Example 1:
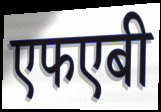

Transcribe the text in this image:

एफएबी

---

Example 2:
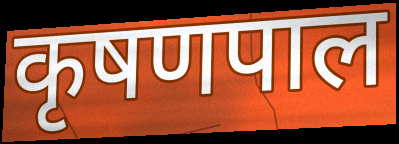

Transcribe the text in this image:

कृषणपाल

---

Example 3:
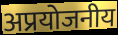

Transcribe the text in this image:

अप्रयोजनीय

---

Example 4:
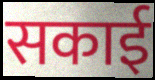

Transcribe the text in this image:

सकाई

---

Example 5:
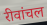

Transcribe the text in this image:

रीवांचल